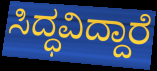
ಸಿದ್ಧವಿದ್ದಾರೆ